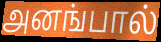
அனங்பால்